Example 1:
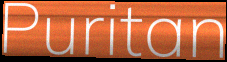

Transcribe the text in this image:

Puritan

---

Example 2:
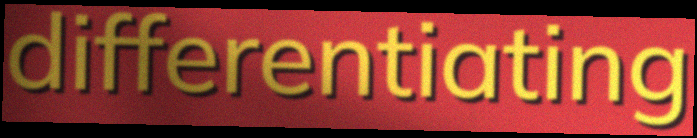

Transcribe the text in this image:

differentiating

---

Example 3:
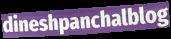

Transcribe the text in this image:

dineshpanchalblog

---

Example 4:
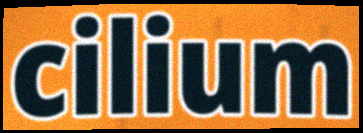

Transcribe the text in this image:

cilium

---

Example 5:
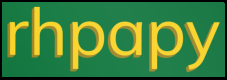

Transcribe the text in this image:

rhpapy